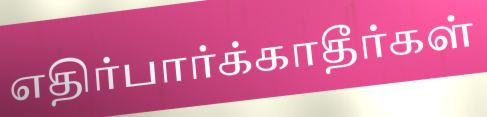
எதிர்பார்க்காதீர்கள்